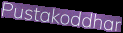
Pustakoddhar